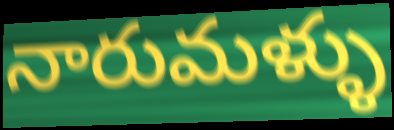
నారుమళ్ళు